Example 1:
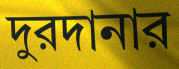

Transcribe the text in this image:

দুরদানার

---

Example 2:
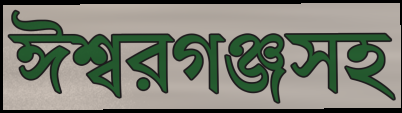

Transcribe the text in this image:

ঈশ্বরগঞ্জসহ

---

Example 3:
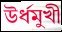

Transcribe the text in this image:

উর্ধমুখী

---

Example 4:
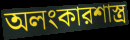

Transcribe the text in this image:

অলংকারশাস্ত্র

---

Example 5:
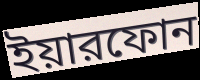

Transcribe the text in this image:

ইয়ারফোন